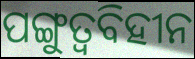
ପଙ୍ଗୁତ୍ୱବିହୀନ